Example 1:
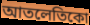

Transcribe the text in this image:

আতলেতিকো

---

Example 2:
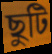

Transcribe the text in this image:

ছুটি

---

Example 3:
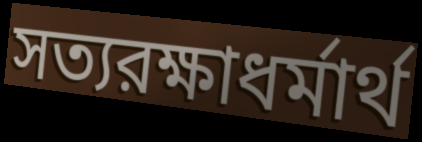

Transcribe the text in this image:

সত্যরক্ষাধর্মার্থ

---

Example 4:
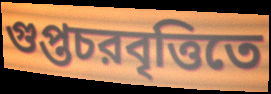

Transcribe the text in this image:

গুপ্তচরবৃত্তিতে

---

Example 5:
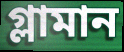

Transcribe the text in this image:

গ্লামান